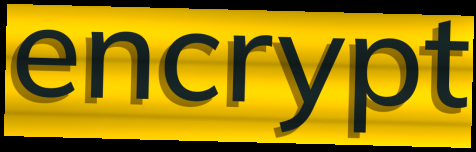
encrypt